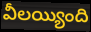
వీలయ్యింది